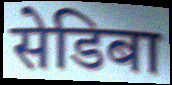
सेडिबा